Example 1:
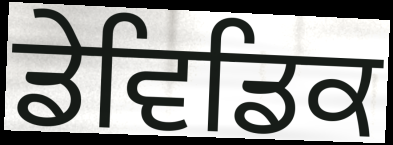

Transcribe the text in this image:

ਡੇਵਿਡਿਕ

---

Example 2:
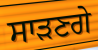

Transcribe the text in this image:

ਸਾੜਣਗੇ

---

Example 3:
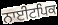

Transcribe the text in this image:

ਨਾਈਟਪਿਕ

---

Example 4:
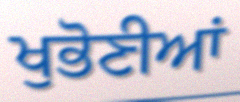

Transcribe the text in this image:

ਖੁਭੋਣੀਆਂ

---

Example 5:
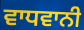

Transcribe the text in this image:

ਵਾਧਵਾਨੀ